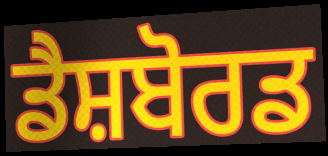
ਡੈਸ਼ਬੋਰਡ